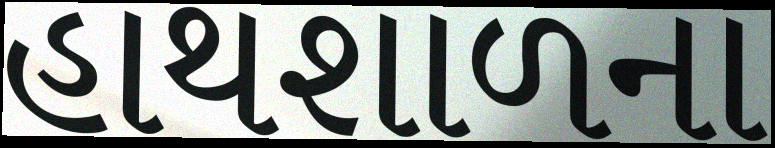
હાથશાળના